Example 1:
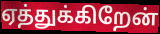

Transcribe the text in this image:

ஏத்துக்கிறேன்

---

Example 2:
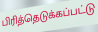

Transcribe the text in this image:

பிரித்தெடுக்கப்பட்டு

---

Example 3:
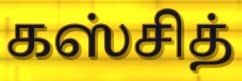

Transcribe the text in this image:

கஸ்சித்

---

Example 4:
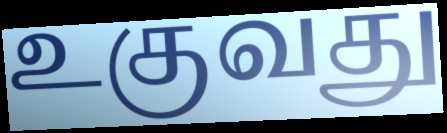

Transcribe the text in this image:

உகுவது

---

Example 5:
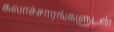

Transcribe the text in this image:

கலாச்சாரங்களுடன்